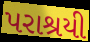
પરાશ્રયી